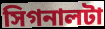
সিগনালটা